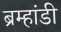
ब्रम्हांडी